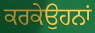
ਕਰਕੇਉਹਨਾਂ